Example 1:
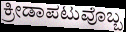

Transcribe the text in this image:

ಕ್ರೀಡಾಪಟುವೊಬ್ಬ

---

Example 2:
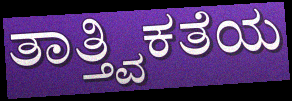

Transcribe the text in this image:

ತಾತ್ತ್ವಿಕತೆಯ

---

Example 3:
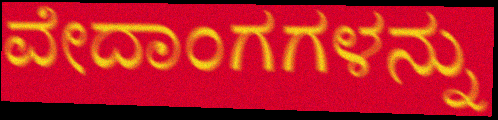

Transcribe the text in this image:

ವೇದಾಂಗಗಳನ್ನು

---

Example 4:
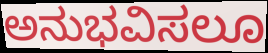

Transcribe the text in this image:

ಅನುಭವಿಸಲೂ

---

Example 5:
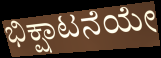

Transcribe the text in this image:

ಭಿಕ್ಷಾಟನೆಯೇ